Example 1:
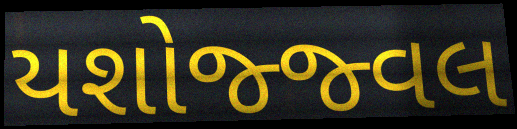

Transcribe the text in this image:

યશોજ્જ્વલ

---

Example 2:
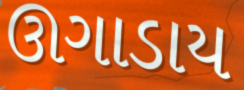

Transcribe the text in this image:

ઊગાડાય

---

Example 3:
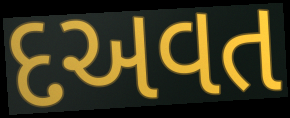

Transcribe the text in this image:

દઅવત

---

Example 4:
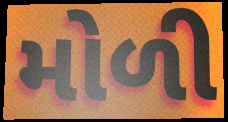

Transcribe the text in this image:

મોળી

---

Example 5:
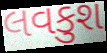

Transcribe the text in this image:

લવકુશ